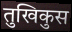
तुखिकुस